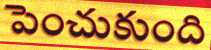
పెంచుకుంది